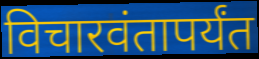
विचारवंतापर्यंत